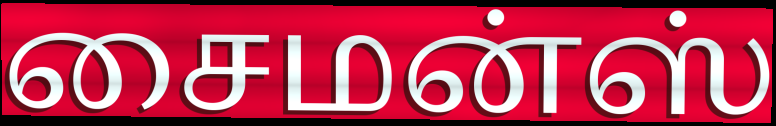
சைமன்ஸ்